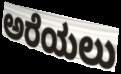
ಅರೆಯಲು